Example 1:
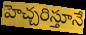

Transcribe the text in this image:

హెచ్చరిస్తూనే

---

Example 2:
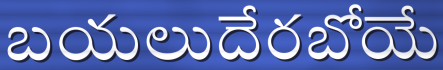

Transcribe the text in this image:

బయలుదేరబోయే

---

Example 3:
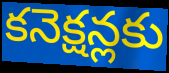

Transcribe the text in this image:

కనెక్షన్లకు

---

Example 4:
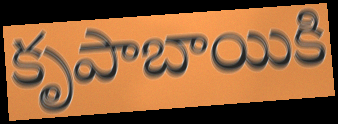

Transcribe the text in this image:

కృపాబాయికి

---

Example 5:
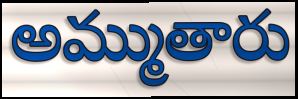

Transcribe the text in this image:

అమ్ముతారు